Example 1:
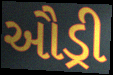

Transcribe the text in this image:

ઔડ્રી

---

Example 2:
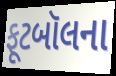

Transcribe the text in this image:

ફૂટબૉલના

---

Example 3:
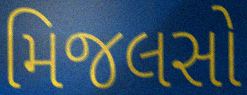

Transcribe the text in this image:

મિજલસો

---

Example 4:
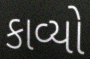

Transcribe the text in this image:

કાવ્યો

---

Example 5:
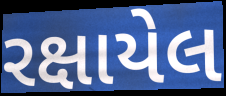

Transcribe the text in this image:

રક્ષાયેલ